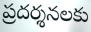
ప్రదర్శనలకు